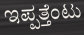
ಇಪ್ಪತ್ತೆಂಟು